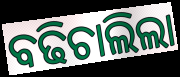
ବଢିଚାଲିଲା